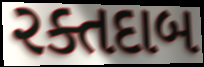
રક્તદાબ